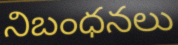
నిబంధనలు